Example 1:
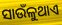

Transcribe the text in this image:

ସାଉଁଳୁଥାଏ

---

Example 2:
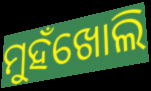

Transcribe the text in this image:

ମୁହଁଖୋଲି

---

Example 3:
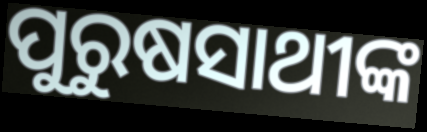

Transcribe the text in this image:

ପୁରୁଷସାଥୀଙ୍କ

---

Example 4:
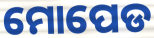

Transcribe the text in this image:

ମୋପେଡ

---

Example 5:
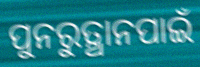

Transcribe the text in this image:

ପୁନରୁତ୍ଥାନପାଇଁ